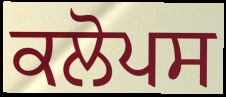
ਕਲੋਪਸ